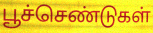
பூச்செண்டுகள்